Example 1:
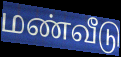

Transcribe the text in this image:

மண்வீடு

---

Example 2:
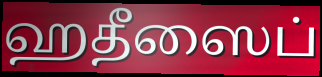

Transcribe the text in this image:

ஹதீஸைப்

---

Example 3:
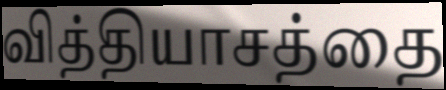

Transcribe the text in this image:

வித்தியாசத்தை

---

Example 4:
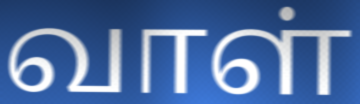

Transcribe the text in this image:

வாள்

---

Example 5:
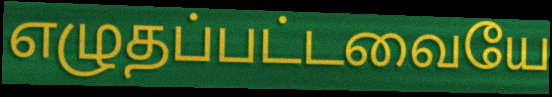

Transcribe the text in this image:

எழுதப்பட்டவையே